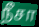
நீசா